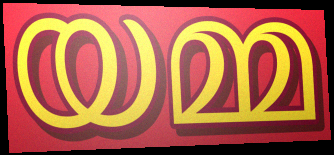
യമ്മ